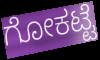
ಗೋಕಟ್ಟೆ